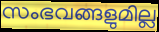
സംഭവങ്ങളുമില്ല